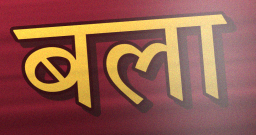
बला